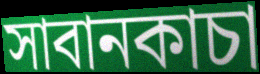
সাবানকাচা